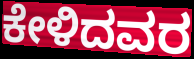
ಕೇಳಿದವರ